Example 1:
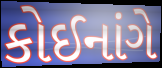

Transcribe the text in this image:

કોઈનાંગે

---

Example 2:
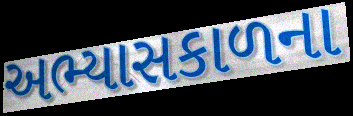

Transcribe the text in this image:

અભ્યાસકાળના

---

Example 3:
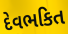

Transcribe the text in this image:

દેવભકિત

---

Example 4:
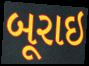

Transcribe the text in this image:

બૂરાઇ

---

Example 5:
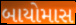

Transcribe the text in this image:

બાયોમાસ